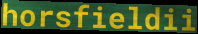
horsfieldii